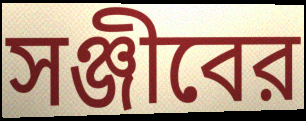
সঞ্জীবের